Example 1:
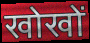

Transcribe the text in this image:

खोखों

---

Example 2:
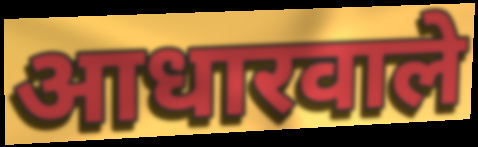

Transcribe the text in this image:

आधारवाले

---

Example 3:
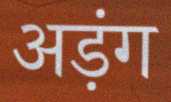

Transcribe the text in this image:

अड़ंग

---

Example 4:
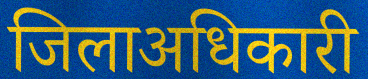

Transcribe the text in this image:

जिलाअधिकारी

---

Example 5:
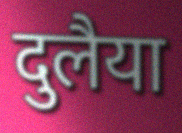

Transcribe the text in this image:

दुलैया